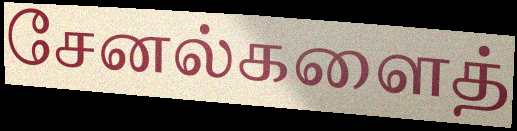
சேனல்களைத்